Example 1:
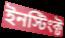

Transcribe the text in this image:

ইনস্টিংক্ট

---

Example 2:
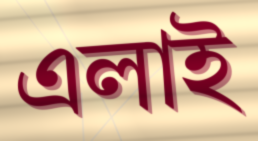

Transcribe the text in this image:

এলাই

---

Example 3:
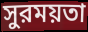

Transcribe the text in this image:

সুরময়তা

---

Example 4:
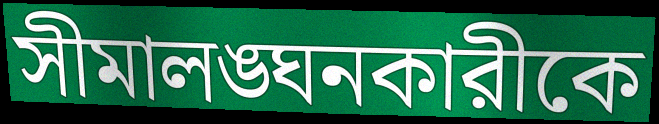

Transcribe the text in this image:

সীমালঙ্ঘনকারীকে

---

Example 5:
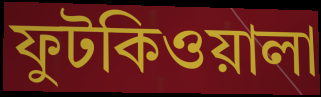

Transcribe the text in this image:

ফুটকিওয়ালা